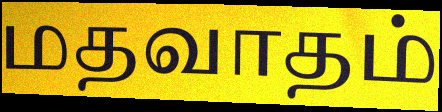
மதவாதம்